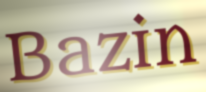
Bazin